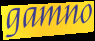
gamno